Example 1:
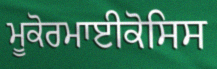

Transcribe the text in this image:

ਮੂਕੋਰਮਾਈਕੋਸਿਸ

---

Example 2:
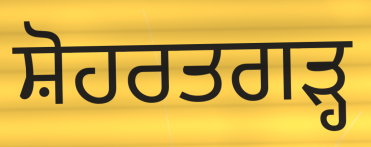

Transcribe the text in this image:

ਸ਼ੋਹਰਤਗੜ੍ਹ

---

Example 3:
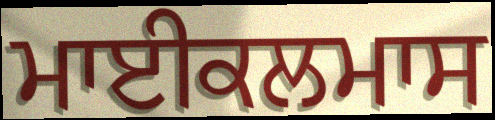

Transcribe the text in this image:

ਮਾਈਕਲਮਾਸ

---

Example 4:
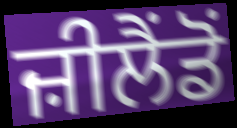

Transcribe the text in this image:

ਜ਼ੀਲੈਂਡੋਂ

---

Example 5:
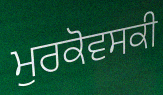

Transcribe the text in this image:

ਮੁਰਕੋਵਸਕੀ